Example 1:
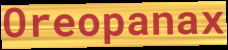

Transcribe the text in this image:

Oreopanax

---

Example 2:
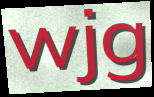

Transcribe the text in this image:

wjg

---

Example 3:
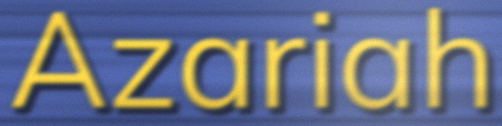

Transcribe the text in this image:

Azariah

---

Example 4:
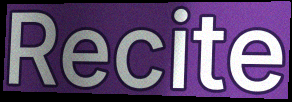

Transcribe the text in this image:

Recite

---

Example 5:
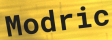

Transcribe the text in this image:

Modric